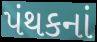
પંથકનાં